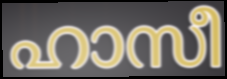
ഹാസീ